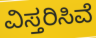
ವಿಸ್ತರಿಸಿವೆ